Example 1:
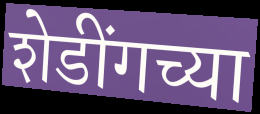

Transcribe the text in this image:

शेडींगच्या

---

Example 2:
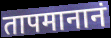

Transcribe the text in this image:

तापमानानं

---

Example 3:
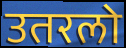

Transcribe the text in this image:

उतरलो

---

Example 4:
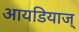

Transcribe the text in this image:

आयडियाज्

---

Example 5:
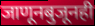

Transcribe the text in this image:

जाणूनबुजूनही